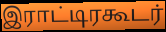
இராட்டிரகூடர்